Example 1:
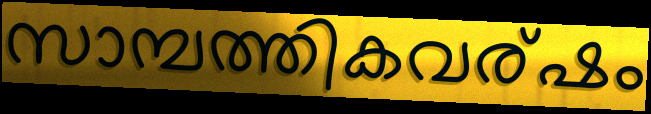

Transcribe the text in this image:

സാമ്പത്തികവര്ഷം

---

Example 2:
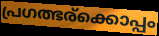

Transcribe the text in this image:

പ്രഗത്ഭര്ക്കൊപ്പം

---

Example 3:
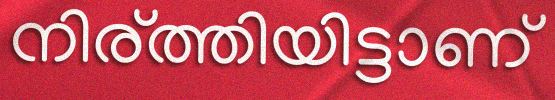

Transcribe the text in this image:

നിര്ത്തിയിട്ടാണ്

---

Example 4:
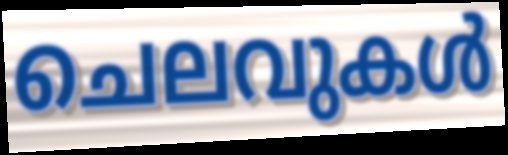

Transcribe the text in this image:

ചെലവുകൾ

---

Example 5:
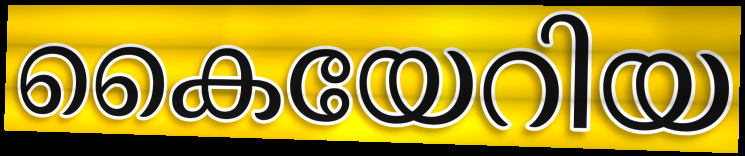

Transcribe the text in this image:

കൈയേറിയ